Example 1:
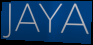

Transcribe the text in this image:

JAYA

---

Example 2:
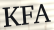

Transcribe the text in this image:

KFA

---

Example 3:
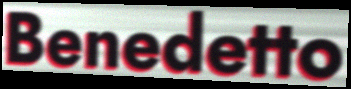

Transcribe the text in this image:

Benedetto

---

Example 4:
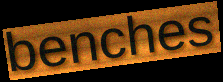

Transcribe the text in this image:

benches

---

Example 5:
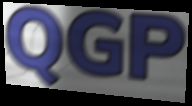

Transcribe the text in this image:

QGP